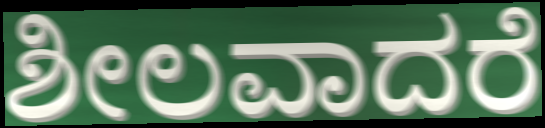
ಶೀಲವಾದರೆ